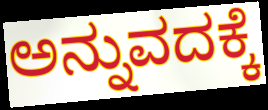
ಅನ್ನುವದಕ್ಕೆ